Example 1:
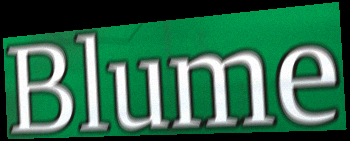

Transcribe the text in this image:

Blume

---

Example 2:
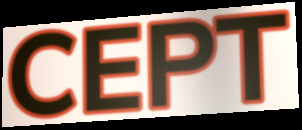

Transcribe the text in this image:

CEPT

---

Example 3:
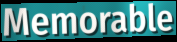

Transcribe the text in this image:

Memorable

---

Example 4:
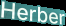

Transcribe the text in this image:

Herber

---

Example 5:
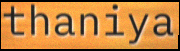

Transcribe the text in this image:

thaniya